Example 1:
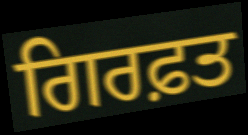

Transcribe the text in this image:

ਗਿਰਫ਼ਤ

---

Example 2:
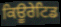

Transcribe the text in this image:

ਕਿਊਰੇਟਿਡ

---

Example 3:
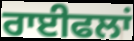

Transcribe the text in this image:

ਰਾਈਫਲਾਂ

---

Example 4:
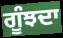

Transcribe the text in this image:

ਗੂੰਝਦਾ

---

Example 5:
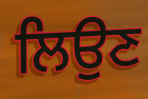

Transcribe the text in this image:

ਲਿਉਣ